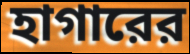
হাগারের